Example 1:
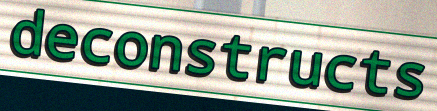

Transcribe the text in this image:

deconstructs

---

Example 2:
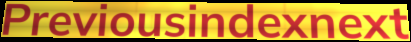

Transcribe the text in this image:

Previousindexnext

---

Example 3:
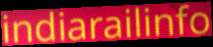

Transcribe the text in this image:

indiarailinfo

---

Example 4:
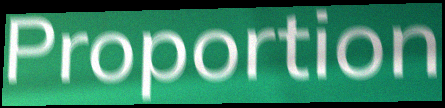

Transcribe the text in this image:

Proportion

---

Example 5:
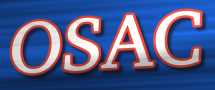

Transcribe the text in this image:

OSAC